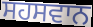
ਸਹਸਵਾਨ